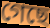
গেছে